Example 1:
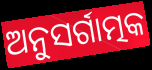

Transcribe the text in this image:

ଅନୁସର୍ଗାତ୍ମକ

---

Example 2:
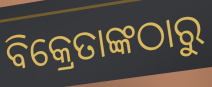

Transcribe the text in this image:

ବିକ୍ରେତାଙ୍କଠାରୁ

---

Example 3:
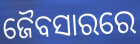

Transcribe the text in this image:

ଜୈବସାରରେ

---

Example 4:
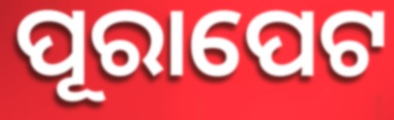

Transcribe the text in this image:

ପୂରାପେଟ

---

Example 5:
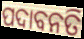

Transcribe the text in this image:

ପଦାବନତି